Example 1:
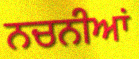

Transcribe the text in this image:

ਨਚਨੀਆਂ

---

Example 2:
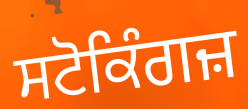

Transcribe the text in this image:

ਸਟੋਕਿੰਗਜ਼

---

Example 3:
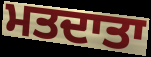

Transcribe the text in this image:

ਮਤਦਾਤਾ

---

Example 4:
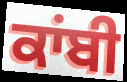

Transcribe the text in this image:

ਕਾਂਬੀ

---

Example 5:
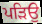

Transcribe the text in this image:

ਪੜਿਉ